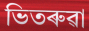
ভিতৰুৱা